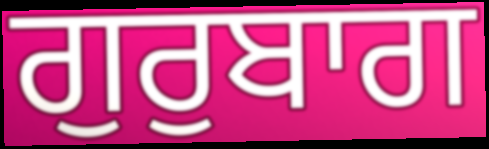
ਗੁਰੁਬਾਗ